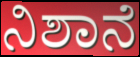
ನಿಶಾನೆ